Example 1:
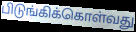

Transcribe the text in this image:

பிடுங்கிக்கொள்வது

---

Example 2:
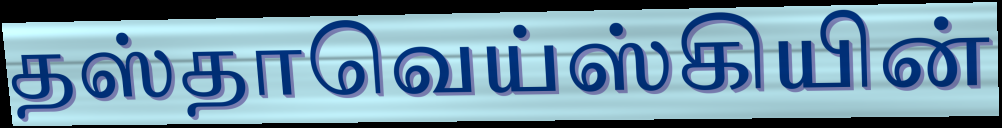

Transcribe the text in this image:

தஸ்தாவெய்ஸ்கியின்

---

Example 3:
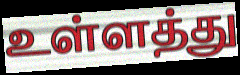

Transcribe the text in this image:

உள்ளத்து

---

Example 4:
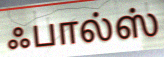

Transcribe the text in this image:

ஃபால்ஸ்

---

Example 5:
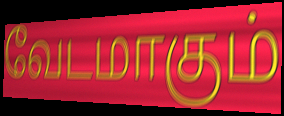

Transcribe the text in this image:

வேடமாகும்